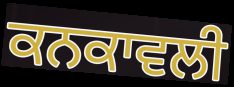
ਕਨਕਾਵਲੀ